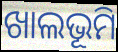
ଖାଲଭୂମି